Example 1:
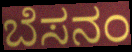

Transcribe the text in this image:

ಬೆಸನಂ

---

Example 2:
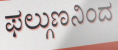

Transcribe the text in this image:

ಫಲ್ಗುಣನಿಂದ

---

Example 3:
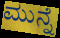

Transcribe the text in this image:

ಮುನ್ನೆ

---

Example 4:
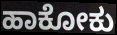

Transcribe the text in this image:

ಹಾಕೋಕು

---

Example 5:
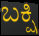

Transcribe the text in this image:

ಬಕ್ಷಿ